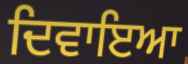
ਦਿਵਾਇਆ